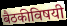
बैठकीविषयी